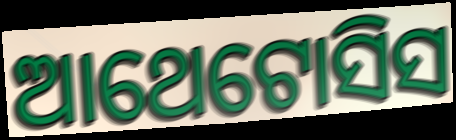
ଆଥେଟୋସିସ